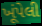
ખૂંપેલી